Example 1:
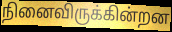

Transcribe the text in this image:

நினைவிருக்கின்றன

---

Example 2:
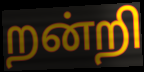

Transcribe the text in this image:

றன்றி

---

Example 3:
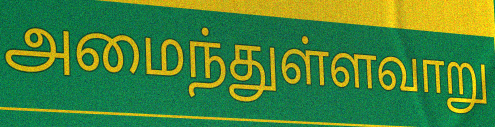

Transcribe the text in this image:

அமைந்துள்ளவாறு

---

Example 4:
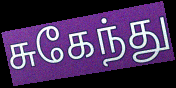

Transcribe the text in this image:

சுகேந்து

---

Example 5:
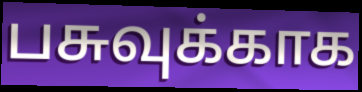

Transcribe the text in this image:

பசுவுக்காக